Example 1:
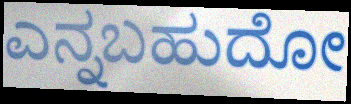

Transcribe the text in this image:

ಎನ್ನಬಹುದೋ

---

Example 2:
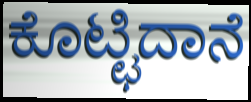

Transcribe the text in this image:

ಕೊಟ್ಟಿದಾನೆ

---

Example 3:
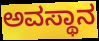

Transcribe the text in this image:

ಅವಸ್ಥಾನ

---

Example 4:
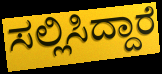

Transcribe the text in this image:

ಸಲ್ಲಿಸಿದ್ದಾರೆ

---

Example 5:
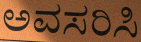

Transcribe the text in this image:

ಅವಸರಿಸಿ